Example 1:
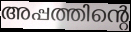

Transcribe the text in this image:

അപ്പത്തിന്റെ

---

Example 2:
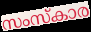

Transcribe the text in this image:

സംസ്കാര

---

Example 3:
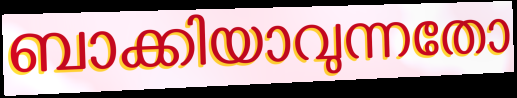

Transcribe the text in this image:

ബാക്കിയാവുന്നതോ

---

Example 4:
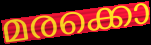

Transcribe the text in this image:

മരക്കൊ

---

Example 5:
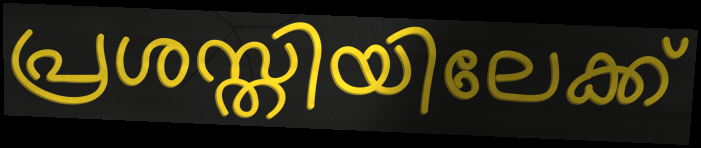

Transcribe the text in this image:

പ്രശസ്തിയിലേക്ക്